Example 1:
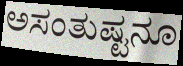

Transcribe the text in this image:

ಅಸಂತುಷ್ಟನೂ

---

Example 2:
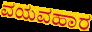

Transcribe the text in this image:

ವಯವಹಾರ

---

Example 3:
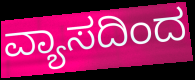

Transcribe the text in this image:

ವ್ಯಾಸದಿಂದ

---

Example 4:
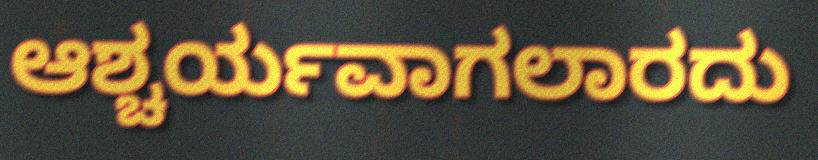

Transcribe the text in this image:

ಆಶ್ಚರ್ಯವಾಗಲಾರದು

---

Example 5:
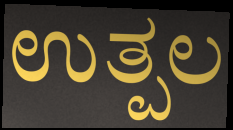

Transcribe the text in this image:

ಉತ್ಪಲ